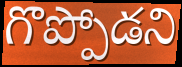
గొప్పోడని